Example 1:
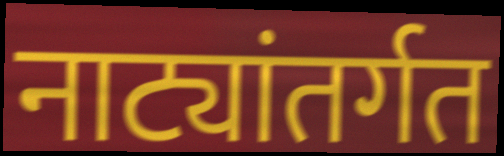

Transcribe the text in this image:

नाट्यांतर्गत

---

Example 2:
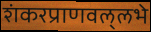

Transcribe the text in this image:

शंकरप्राणवल्लभे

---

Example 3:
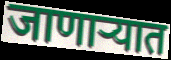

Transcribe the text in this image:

जाणाऱ्यात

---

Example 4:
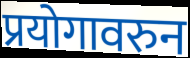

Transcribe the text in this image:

प्रयोगावरुन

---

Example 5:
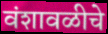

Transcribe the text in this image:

वंशावळीचे